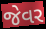
જેવર